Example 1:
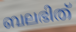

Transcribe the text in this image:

ബലഭിത്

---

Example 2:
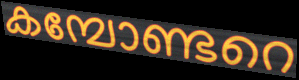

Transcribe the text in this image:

കമ്പോണ്ടറെ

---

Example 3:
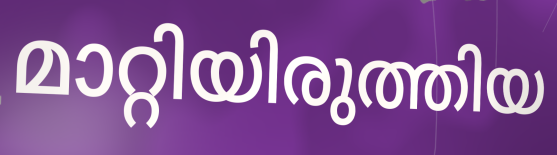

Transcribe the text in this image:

മാറ്റിയിരുത്തിയ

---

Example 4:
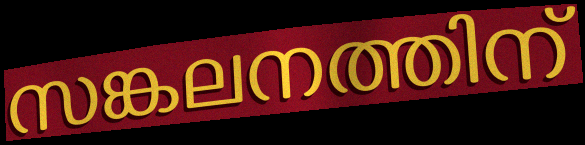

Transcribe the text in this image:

സങ്കലനത്തിന്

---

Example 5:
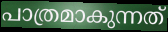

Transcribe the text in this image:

പാത്രമാകുന്നത്